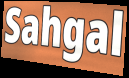
Sahgal